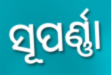
ସୂପର୍ଣ୍ଣା